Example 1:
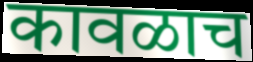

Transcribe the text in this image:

कावळाच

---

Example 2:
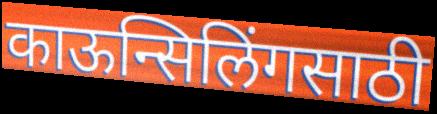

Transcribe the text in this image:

काऊन्सिलिंगसाठी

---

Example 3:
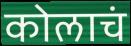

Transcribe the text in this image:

कोलाचं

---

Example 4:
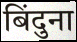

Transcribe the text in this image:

बिंदुना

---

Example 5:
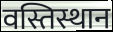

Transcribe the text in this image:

वस्तिस्थान